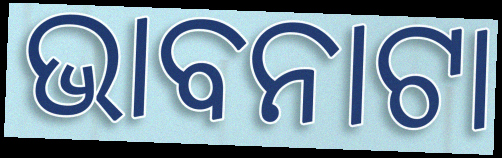
ଭାବନାଟା